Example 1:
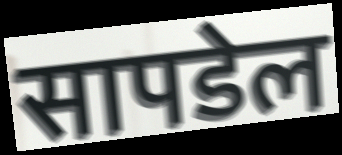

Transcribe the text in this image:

सापडेल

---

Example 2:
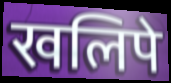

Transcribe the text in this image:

खलिपे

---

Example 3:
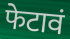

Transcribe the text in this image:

फेटावं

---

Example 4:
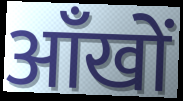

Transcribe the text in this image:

आँखों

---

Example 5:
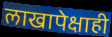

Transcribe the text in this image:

लाखापेक्षाही